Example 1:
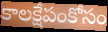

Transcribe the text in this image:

కాలక్షేపంకోసం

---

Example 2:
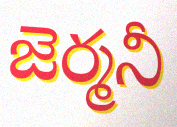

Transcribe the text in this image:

జెర్మనీ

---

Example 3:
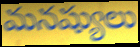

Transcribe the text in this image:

మనష్యులు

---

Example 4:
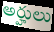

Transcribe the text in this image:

అర్హులు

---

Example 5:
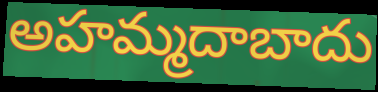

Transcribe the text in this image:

అహమ్మదాబాదు